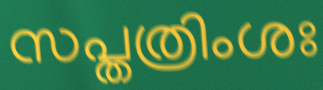
സപ്തത്രിംശഃ